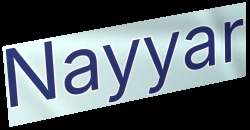
Nayyar